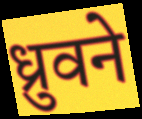
ध्रुवने